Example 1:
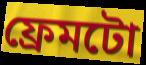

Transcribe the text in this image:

ফ্ৰেমটো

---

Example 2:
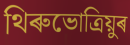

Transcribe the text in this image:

থিৰুভোত্ৰিয়ুৰ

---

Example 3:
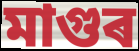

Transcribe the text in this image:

মাগুৰ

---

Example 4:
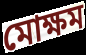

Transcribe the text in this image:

মোক্ষম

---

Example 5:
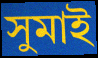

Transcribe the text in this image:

সুমাই